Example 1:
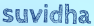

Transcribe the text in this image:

suvidha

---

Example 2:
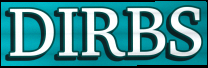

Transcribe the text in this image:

DIRBS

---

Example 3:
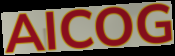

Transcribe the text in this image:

AICOG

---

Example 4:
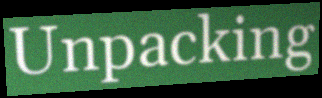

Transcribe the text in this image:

Unpacking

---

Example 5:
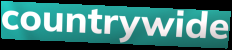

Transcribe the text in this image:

countrywide